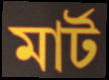
মার্ট